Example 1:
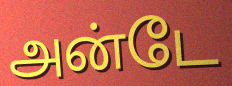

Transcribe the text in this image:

அன்டே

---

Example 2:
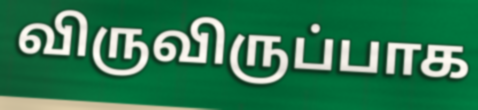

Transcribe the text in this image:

விருவிருப்பாக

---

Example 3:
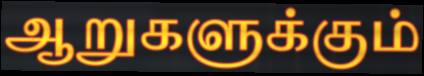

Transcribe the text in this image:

ஆறுகளுக்கும்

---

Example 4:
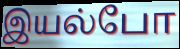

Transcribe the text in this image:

இயல்போ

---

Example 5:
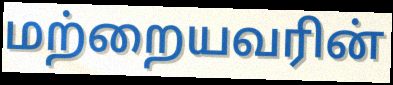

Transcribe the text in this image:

மற்றையவரின்